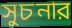
সুচনার